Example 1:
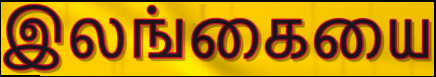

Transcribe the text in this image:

இலங்கையை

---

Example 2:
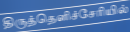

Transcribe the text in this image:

திருத்தெளிச்சேரியில்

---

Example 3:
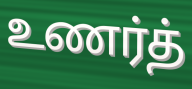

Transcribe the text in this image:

உணர்த்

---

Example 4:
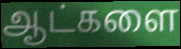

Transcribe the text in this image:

ஆட்களை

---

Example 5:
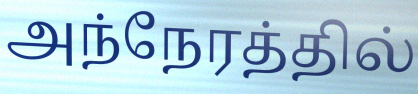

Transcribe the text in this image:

அந்நேரத்தில்